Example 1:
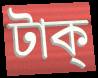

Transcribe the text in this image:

টাক্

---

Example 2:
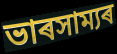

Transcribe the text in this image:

ভাৰসাম্যৰ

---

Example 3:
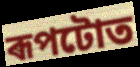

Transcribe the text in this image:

ৰূপটোত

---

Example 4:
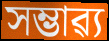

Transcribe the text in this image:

সম্ভাৱ্য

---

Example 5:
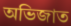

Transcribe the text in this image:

অভিজাত